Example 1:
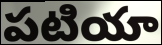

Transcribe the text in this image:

పటియా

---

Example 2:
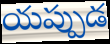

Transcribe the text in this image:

యప్పుడ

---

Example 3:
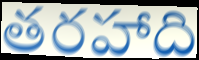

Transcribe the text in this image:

తరహాది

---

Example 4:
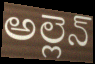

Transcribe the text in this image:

అల్లెన్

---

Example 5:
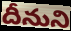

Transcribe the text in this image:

దీనుని